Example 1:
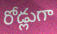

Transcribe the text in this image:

రోడ్లుగా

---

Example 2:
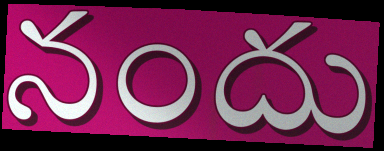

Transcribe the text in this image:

నందు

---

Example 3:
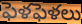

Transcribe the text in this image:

ఫెళఫెళలు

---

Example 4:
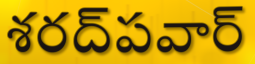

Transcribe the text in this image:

శరద్‌పవార్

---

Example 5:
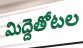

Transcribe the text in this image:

మిద్దెతోటల